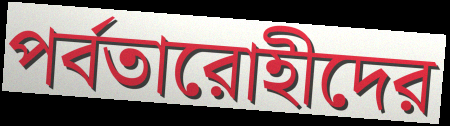
পর্বতারোহীদের